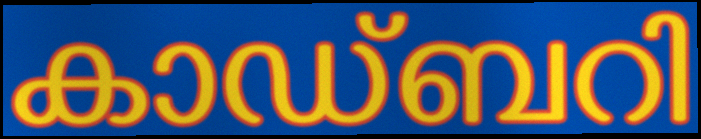
കാഡ്ബറി